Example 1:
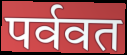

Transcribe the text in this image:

पर्ववत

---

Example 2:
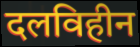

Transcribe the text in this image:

दलविहीन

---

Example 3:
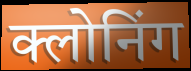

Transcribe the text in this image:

क्लोनिंग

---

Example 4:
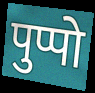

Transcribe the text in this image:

पुप्पो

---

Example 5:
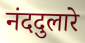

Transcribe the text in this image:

नंददुलारे